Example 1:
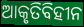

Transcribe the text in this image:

ଆକୃତିବିହୀନ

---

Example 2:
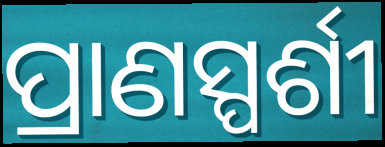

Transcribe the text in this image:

ପ୍ରାଣସ୍ପର୍ଶୀ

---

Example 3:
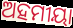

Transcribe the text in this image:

ଅହମୀୟା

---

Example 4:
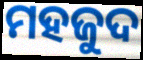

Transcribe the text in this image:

ମହଜୁଦ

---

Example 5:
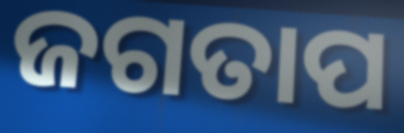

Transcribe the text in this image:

ଜଗତାପ